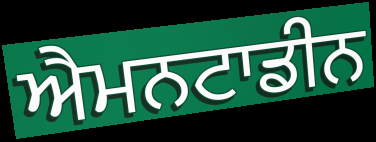
ਐਮਨਟਾਡੀਨ